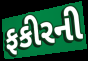
ફકીરની